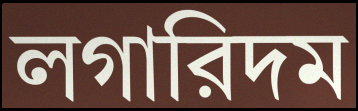
লগারিদম